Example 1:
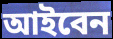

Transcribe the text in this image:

আইবেন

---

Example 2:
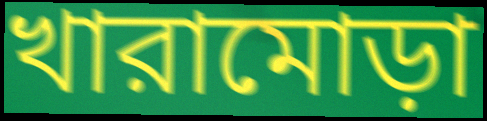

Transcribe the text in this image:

খারামোড়া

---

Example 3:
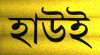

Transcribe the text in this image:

হাউই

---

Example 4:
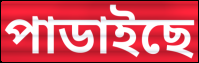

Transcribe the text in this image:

পাডাইছে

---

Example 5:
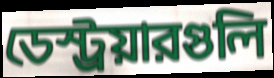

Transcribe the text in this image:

ডেস্ট্রয়ারগুলি